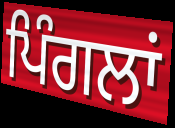
ਪਿੰਗਲਾਂ